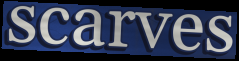
scarves